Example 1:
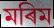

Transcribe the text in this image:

মৰিম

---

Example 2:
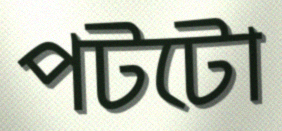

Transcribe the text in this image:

পটটো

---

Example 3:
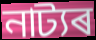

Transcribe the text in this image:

নাট্যৰ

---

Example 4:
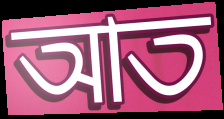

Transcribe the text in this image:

আত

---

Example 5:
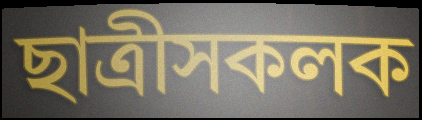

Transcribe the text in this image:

ছাত্ৰীসকলক